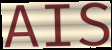
AIS